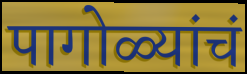
पागोळ्यांचं